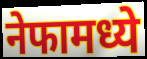
नेफामध्ये